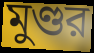
মুণ্ডর